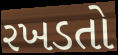
રખડતો